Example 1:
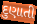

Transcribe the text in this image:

દુણાતી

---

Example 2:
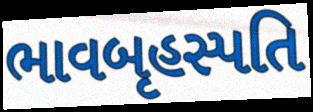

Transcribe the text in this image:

ભાવબૃહસ્પતિ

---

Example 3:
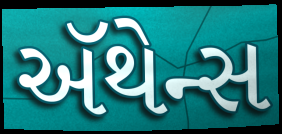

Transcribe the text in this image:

ઍથેન્સ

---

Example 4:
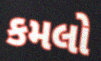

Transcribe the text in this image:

કમલો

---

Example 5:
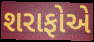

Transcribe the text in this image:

શરાફોએ